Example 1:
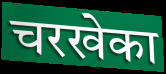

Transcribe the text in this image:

चरखेका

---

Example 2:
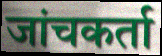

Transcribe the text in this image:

जांचकर्ता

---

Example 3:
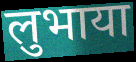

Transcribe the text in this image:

लुभाया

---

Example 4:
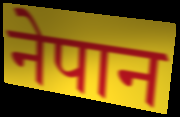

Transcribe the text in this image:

नेपान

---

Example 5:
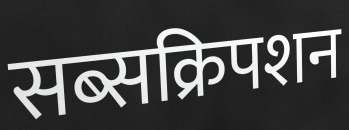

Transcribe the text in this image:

सब्सक्रिपशन